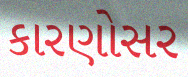
કારણોસર